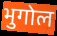
भुगोल